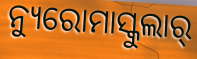
ନ୍ୟୁରୋମାସ୍କୁଲାର୍